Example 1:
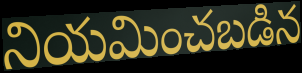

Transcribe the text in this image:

నియమించబడిన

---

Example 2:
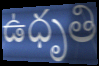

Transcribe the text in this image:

ఉధృతి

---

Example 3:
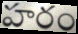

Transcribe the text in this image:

హరం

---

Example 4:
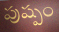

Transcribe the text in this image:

పుష్పం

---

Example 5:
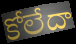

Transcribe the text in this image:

కోలేదా